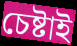
চেষ্টাই